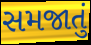
સમજાતું